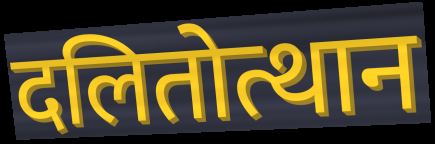
दलितोत्थान